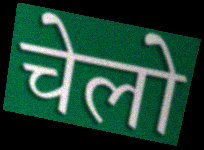
चेलो